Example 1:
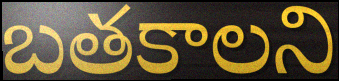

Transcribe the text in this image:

బతకాలని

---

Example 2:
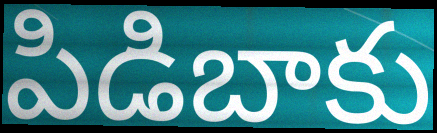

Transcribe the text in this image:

పిడిబాకు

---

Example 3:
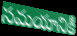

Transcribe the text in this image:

సమయానికీ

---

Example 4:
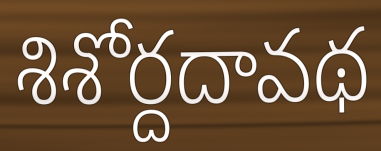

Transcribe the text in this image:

శిశోర్దదావథ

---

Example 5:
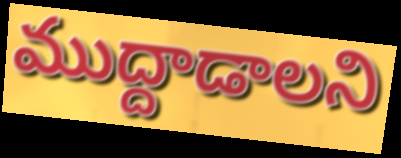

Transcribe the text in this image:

ముద్దాడాలని